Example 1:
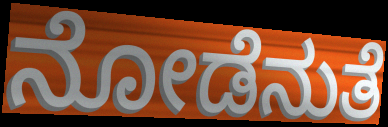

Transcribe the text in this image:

ನೋಡೆನುತೆ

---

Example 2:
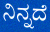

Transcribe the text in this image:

ನಿನ್ನದೆ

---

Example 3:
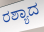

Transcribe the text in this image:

ರಶ್ಯಾದ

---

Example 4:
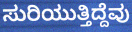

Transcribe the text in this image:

ಸುರಿಯುತ್ತಿದ್ದೆವು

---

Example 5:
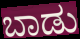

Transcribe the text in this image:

ಬಾಡು